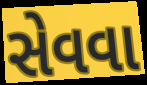
સેવવા